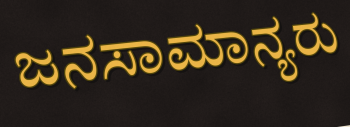
ಜನಸಾಮಾನ್ಯರು